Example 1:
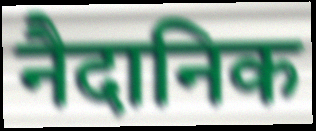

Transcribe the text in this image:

नैदानिक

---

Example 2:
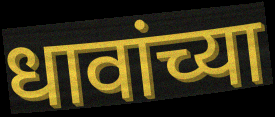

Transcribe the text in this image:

धावांच्या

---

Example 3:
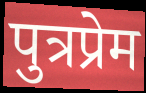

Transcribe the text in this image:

पुत्रप्रेम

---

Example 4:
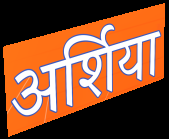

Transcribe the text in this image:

अर्शिया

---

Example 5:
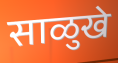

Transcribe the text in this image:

साळुखे